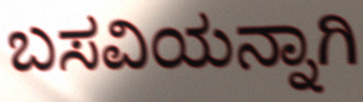
ಬಸವಿಯನ್ನಾಗಿ